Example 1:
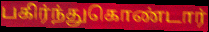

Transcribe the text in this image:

பகிர்ந்துகொண்டார்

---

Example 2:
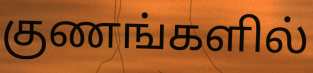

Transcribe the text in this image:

குணங்களில்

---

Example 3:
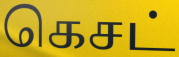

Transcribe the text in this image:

கெசட்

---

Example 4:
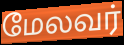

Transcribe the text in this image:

மேலவர்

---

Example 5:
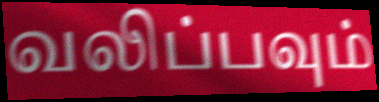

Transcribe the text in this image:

வலிப்பவும்